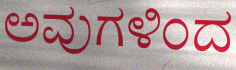
ಅವುಗಳಿಂದ